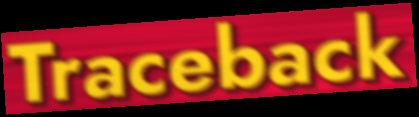
Traceback